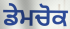
ਡੇਮਚੋਕ